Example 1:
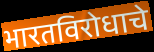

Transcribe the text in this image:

भारतविरोधाचे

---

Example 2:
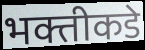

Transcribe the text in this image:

भक्तीकडे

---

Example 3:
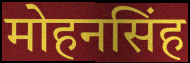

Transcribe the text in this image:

मोहनसिंह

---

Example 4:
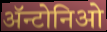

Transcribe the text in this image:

ॲन्टोनिओ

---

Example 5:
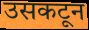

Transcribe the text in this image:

उसकटून